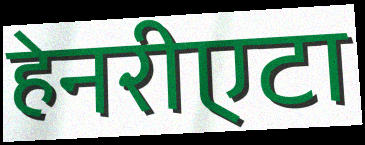
हेनरीएटा